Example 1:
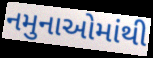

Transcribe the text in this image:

નમુનાઓમાંથી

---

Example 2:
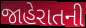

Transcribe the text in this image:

જાહેરાતની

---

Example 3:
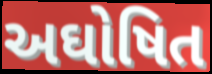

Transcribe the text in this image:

અઘોષિત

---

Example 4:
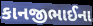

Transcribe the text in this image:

કાનજીભાઈના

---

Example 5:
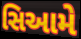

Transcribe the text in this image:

સિઆમે